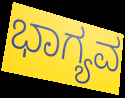
ಭಾಗ್ಯವ